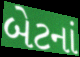
બેટનાં